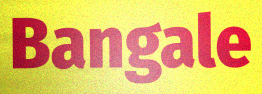
Bangale